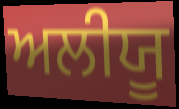
ਅਲੀਯੂ